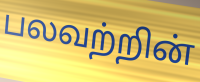
பலவற்றின்